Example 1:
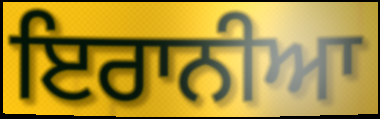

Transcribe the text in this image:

ਇਰਾਨੀਆ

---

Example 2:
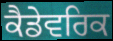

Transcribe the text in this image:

ਕੈਡੇਵਰਿਕ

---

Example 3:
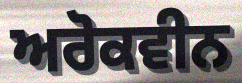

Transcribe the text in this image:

ਅਰੋਕਵੀਨ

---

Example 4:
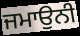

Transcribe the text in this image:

ਜਮਾਉਨੀ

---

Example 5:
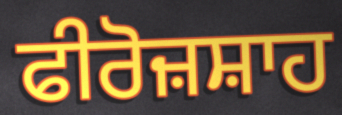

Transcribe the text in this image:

ਫੀਰੋਜ਼ਸ਼ਾਹ